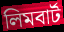
লিমবার্ট